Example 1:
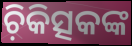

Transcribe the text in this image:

ଚ଼ିକିତ୍ସକଙ୍କ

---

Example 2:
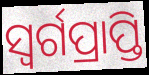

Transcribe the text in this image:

ସ୍ଵର୍ଗପ୍ରାପ୍ତି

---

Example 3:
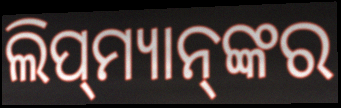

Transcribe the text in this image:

ଲିପ୍‌ମ୍ୟାନ୍‌ଙ୍କର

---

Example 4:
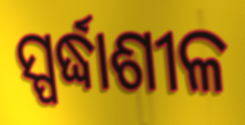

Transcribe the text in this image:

ସ୍ପର୍ଦ୍ଧାଶୀଳ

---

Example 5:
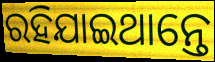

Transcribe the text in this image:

ରହିଯାଇଥାନ୍ତେ